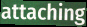
attaching